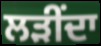
ਲੜੀਂਦਾ